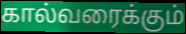
கால்வரைக்கும்